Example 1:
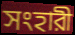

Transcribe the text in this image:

সংহারী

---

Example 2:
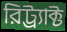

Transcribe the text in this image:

রিট্র্যাক্ট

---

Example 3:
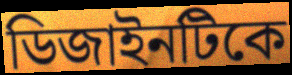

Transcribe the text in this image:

ডিজাইনটিকে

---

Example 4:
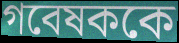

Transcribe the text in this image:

গবেষককে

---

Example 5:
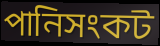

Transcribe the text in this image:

পানিসংকট